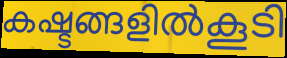
കഷ്ടങ്ങളിൽകൂടി